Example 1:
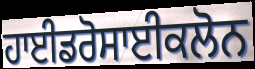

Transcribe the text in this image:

ਹਾਈਡਰੋਸਾਈਕਲੋਨ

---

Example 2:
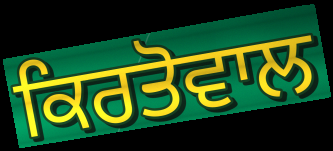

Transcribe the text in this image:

ਕਿਰਤੋਵਾਲ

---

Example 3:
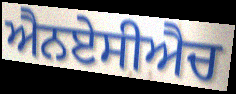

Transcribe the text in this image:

ਐਨਏਸੀਐਚ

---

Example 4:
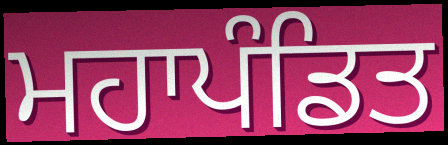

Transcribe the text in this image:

ਮਹਾਪੰਡਿਤ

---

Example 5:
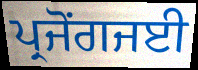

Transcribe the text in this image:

ਪ੍ਰਜੋਂਗਜਈ